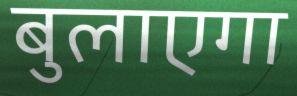
बुलाएगा